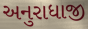
અનુરાધાજી